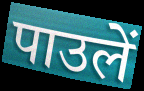
पाउलें